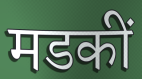
मडकीं